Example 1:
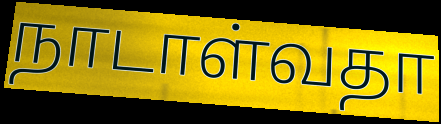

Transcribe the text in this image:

நாடாள்வதா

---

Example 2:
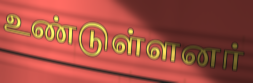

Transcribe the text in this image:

உண்டுள்ளனர்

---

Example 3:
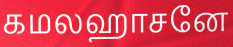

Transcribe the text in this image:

கமலஹாசனே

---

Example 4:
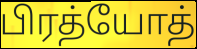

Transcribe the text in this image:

பிரத்யோத்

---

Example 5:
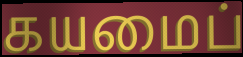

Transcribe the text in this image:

கயமைப்